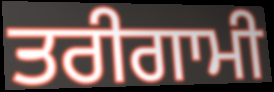
ਤਰੀਗਾਮੀ